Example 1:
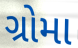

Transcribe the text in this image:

ગ્રોમા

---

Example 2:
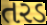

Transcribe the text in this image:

તરડ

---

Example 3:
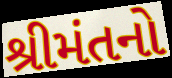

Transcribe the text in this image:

શ્રીમંતનો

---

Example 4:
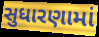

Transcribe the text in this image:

સુધારણામાં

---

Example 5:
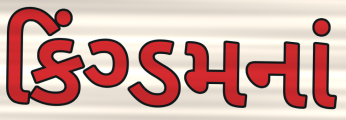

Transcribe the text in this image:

કિંગ્ડમનાં